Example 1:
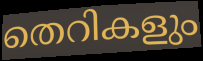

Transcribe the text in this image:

തെറികളും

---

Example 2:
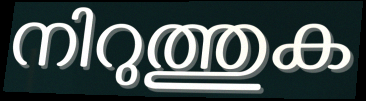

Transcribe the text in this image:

നിറുത്തുക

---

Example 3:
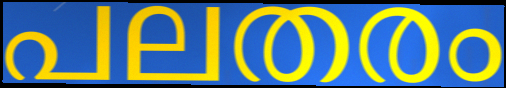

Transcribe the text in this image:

പലതരം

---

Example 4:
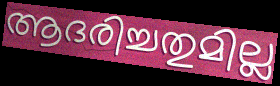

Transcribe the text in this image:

ആദരിച്ചതുമില്ല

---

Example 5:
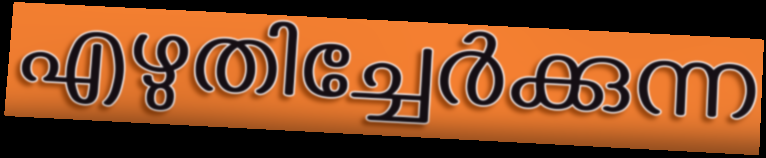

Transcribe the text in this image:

എഴുതിച്ചേർക്കുന്ന